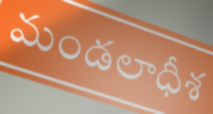
మండలాధీశ